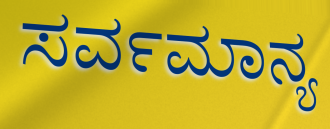
ಸರ್ವಮಾನ್ಯ